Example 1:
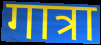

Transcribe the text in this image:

गात्रा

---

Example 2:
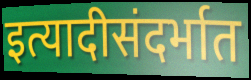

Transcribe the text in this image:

इत्यादीसंदर्भात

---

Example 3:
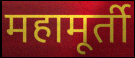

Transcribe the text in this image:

महामूर्ती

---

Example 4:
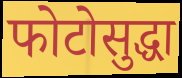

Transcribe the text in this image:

फोटोसुद्धा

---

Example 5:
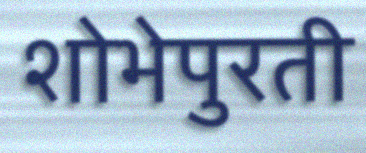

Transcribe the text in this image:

शोभेपुरती